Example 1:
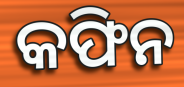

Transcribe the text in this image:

କଫିନ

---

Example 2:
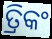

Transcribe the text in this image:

ତ୍ରିକଂ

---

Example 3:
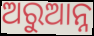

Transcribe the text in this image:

ଅରୁଆନ୍ନ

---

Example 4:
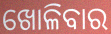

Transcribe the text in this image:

ଖୋଳିବାର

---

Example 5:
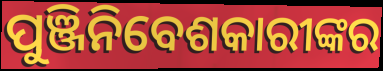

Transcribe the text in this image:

ପୁଞ୍ଜିନିବେଶକାରୀଙ୍କର